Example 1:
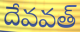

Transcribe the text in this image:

దేవవత్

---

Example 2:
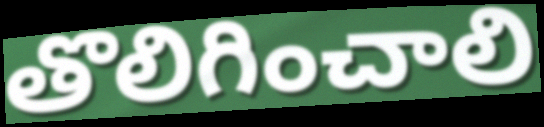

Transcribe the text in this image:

తొలిగించాలి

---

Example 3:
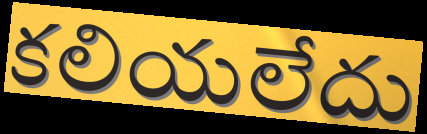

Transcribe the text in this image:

కలియలేదు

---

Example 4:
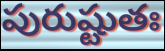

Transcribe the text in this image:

పురుష్టుతః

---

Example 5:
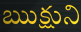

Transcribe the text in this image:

ఋక్షుని